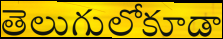
తెలుగులోకూడా